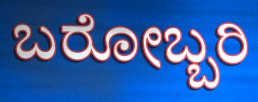
ಬರೋಬ್ಬರಿ